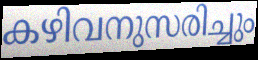
കഴിവനുസരിച്ചും